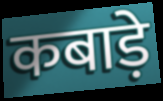
कबाड़े